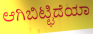
ಆಗಿಬಿಟ್ಟಿದೆಯಾ